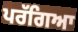
ਪਰੱਗਿਆ